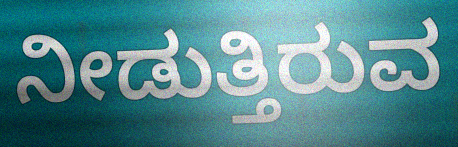
ನೀಡುತ್ತಿರುವ